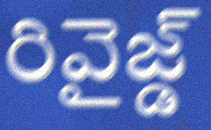
రివైజ్డ్